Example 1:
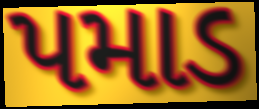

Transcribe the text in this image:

પમાડ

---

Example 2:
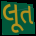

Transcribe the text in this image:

લૂત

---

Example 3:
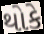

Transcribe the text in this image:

થોકે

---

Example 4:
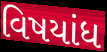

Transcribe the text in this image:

વિષયાંધ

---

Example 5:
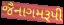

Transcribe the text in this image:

જૈનાગમરૂપી